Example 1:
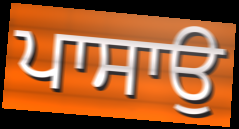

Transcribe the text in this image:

ਪਾਸਾਉ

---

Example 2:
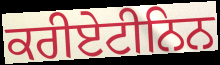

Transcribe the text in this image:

ਕਰੀਏਟੀਨਿਨ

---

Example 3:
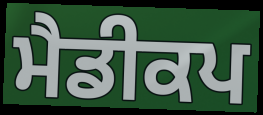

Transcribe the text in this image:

ਮੈਡੀਕਪ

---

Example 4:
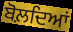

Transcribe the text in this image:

ਬੋਲ਼ਦਿਆਂ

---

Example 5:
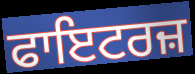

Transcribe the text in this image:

ਫਾਇਟਰਜ਼